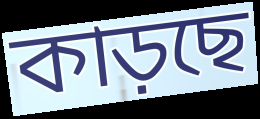
কাড়ছে